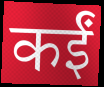
कईं